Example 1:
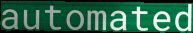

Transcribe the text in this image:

automated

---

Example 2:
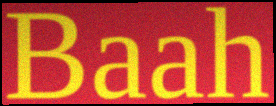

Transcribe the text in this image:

Baah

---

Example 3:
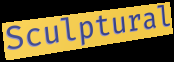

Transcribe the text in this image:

Sculptural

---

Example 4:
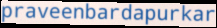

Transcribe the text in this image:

praveenbardapurkar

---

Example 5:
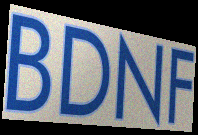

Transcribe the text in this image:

BDNF